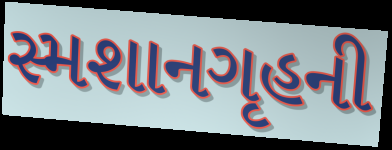
સ્મશાનગૃહની